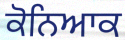
ਕੋਨਿਆਕ